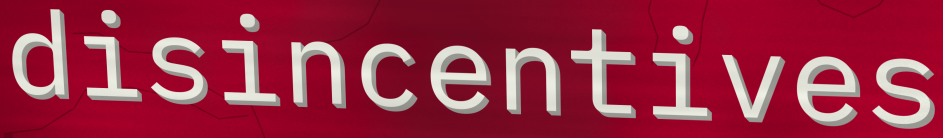
disincentives